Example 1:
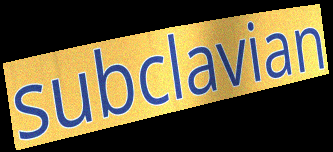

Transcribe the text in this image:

subclavian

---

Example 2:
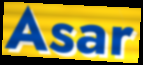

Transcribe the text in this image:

Asar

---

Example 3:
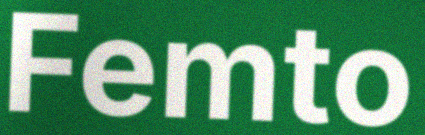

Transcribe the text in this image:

Femto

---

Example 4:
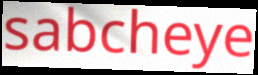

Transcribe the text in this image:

sabcheye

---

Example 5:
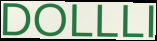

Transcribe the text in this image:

DOLLLI